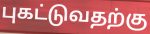
புகட்டுவதற்கு